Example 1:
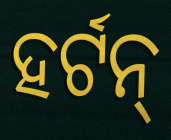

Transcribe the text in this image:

ହର୍ଟନ୍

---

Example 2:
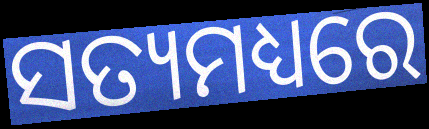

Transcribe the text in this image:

ସତ୍ୟମଧ୍ୟରେ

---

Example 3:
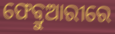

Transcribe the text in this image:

ଫେବ୍ରୁଆରୀରେ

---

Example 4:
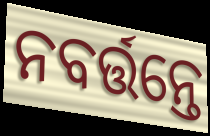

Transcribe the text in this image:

ନବର୍ତ୍ତନ୍ତେ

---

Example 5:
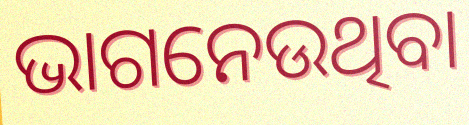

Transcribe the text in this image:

ଭାଗନେଉଥିବା